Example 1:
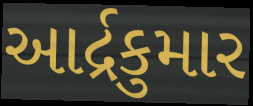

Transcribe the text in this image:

આર્દ્રકુમાર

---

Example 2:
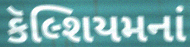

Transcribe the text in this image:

કૅલ્શિયમનાં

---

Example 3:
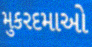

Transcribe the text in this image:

મુકરદમાઓ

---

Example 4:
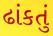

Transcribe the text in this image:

ઢાંકતું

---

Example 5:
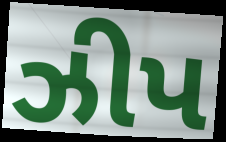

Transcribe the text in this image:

ઝીપ